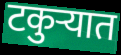
टकुर्‍यात